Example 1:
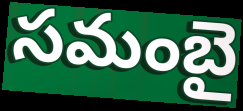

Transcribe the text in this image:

సమంబై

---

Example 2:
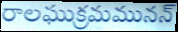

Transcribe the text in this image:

రాలఘుక్రమమునన్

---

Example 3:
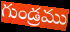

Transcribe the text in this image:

గుండ్రము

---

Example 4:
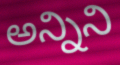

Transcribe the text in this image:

అన్నిని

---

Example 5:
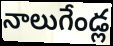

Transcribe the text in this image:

నాలుగేండ్ల